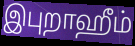
இபுறாஹீம்